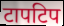
टापटिप